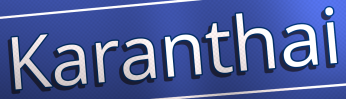
Karanthai